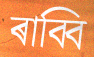
ৰাব্বি